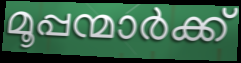
മൂപ്പന്മാർക്ക്